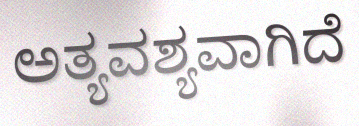
ಅತ್ಯವಶ್ಯವಾಗಿದೆ